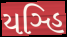
યઞ્હિ